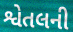
શ્વેતલની